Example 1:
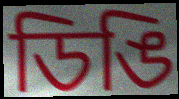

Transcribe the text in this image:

ডিঙি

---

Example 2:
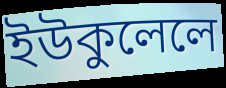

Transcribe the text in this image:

ইউকুলেলে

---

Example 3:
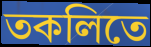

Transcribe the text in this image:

তকলিতে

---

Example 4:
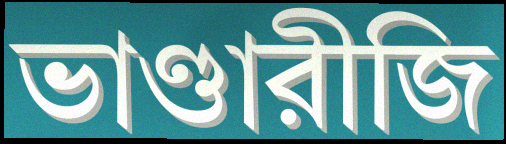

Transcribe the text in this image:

ভাণ্ডারীজি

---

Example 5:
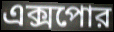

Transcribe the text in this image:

এক্সপোর